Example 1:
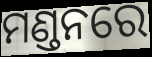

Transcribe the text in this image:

ମଣ୍ଡନରେ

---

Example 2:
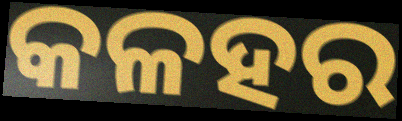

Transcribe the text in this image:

କଳହର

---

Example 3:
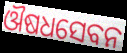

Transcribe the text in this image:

ଔଷଧସେବନ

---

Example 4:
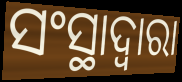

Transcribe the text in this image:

ସଂସ୍ଥାଦ୍ୱାରା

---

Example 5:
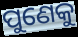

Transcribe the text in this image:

ପୁଣେକୁ